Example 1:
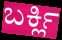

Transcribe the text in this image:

ಬರ್ಕ್ಲಿ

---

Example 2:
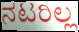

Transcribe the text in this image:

ನಟರಿಲ್ಲ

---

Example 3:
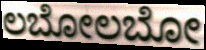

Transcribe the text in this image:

ಲಬೋಲಬೋ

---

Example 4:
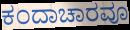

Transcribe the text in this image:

ಕಂದಾಚಾರವೂ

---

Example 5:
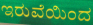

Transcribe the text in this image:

ಇರುವೆಯಿಂದ